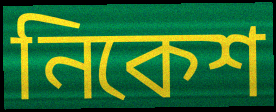
নিকেশ